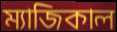
ম্যাজিকাল